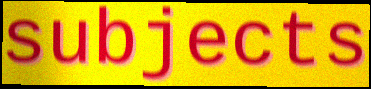
subjects